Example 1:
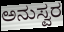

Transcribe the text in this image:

ಅನುಸ್ವರ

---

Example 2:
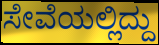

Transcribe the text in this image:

ಸೇವೆಯಲ್ಲಿದ್ದು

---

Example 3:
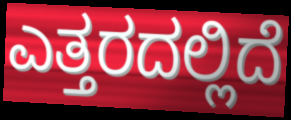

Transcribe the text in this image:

ಎತ್ತರದಲ್ಲಿದೆ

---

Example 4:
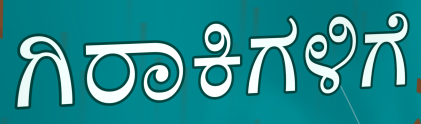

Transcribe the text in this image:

ಗಿರಾಕಿಗಳಿಗೆ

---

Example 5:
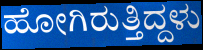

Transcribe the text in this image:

ಹೋಗಿರುತ್ತಿದ್ದಳು